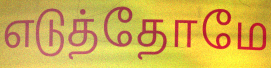
எடுத்தோமே